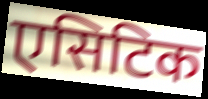
एसिटिक